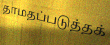
தாமதப்படுத்தக்